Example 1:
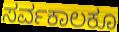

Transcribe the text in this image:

ಸರ್ವಕಾಲಕೂ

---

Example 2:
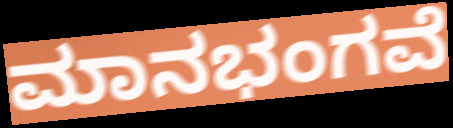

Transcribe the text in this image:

ಮಾನಭಂಗವೆ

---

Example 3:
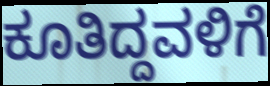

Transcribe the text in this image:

ಕೂತಿದ್ದವಳಿಗೆ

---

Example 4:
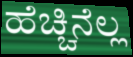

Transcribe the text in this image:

ಹೆಚ್ಚಿನೆಲ್ಲ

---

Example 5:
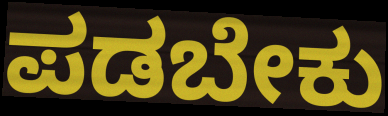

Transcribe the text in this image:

ಪಡಬೇಕು